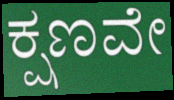
ಕ್ಷಣವೇ